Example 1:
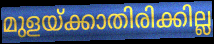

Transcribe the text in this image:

മുളയ്ക്കാതിരിക്കില്ല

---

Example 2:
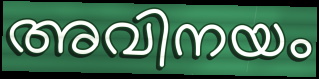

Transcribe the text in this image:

അവിനയം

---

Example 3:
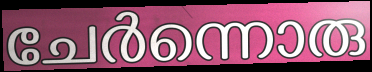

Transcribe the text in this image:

ചേർന്നൊരു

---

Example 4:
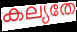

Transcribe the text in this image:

കല്യതേ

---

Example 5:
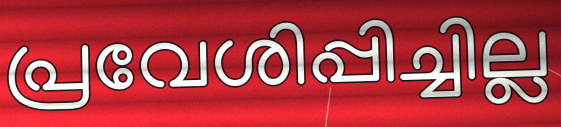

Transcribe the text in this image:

പ്രവേശിപ്പിച്ചില്ല